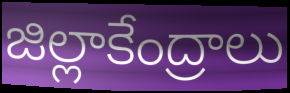
జిల్లాకేంద్రాలు